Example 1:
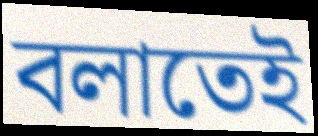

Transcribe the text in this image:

বলাতেই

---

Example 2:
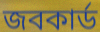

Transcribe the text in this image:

জবকার্ড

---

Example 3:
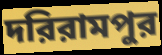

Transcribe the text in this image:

দরিরামপুর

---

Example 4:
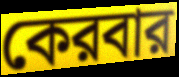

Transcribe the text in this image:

কেরবার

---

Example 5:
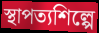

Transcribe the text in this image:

স্থাপত্যশিল্পে